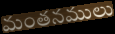
మంతనములు